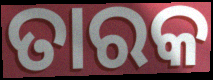
ତାରକ